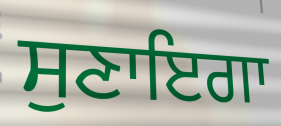
ਸੁਣਾਇਗਾ